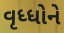
વૃધ્ધોને